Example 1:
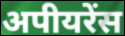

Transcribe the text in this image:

अपीयरेंस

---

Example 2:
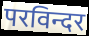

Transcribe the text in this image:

परविन्दर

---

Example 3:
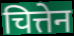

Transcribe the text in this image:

चित्तेन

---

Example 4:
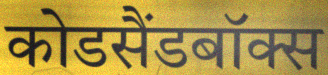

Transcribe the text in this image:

कोडसैंडबॉक्स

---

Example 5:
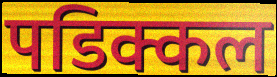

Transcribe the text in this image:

पडिक्कल